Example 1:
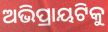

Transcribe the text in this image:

ଅଭିପ୍ରାୟଟିକୁ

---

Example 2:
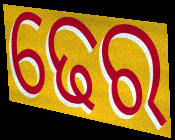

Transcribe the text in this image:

ଢେର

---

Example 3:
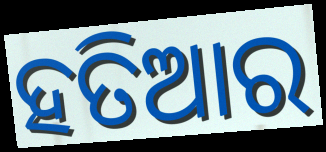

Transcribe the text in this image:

ହତିଆର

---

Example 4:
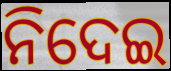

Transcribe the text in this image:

ନିଦେଇ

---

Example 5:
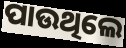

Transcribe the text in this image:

ପାଉଥିଲେ